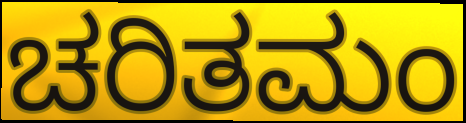
ಚರಿತಮಂ